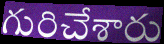
గురిచేశారు